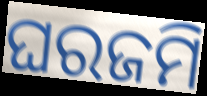
ଘରଜମି